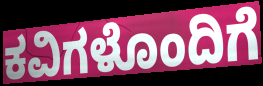
ಕವಿಗಳೊಂದಿಗೆ